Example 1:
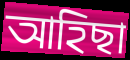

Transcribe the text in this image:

আহিছা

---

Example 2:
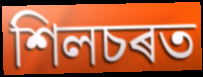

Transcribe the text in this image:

শিলচৰত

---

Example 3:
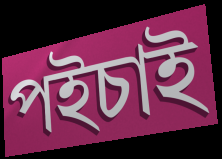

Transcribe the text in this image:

পইচাই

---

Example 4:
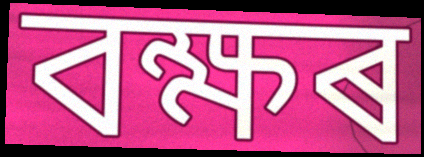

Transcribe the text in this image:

বক্ষৰ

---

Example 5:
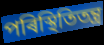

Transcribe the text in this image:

পৰিস্থিতিতন্ত্ৰ